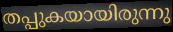
തപ്പുകയായിരുന്നു